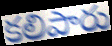
కలిపారు